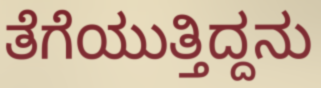
ತೆಗೆಯುತ್ತಿದ್ದನು